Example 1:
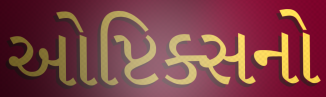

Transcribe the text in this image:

ઓપ્ટિક્સનો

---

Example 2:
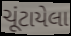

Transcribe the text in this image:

ચૂંટાયેલા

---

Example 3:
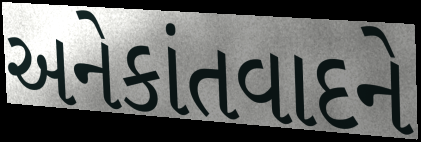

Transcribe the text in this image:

અનેકાંતવાદને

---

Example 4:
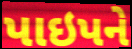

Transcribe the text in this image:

પાઇપને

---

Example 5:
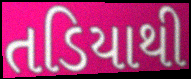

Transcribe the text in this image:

તડિયાથી